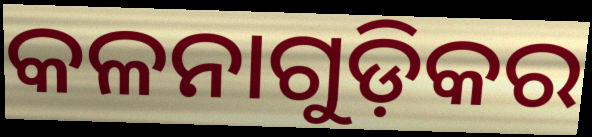
କଳନାଗୁଡ଼ିକର